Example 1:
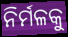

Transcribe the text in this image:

ନିର୍ମଳକୁ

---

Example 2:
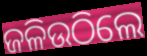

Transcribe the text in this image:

ଜଳିଉଠିଲେ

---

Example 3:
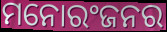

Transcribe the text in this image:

ମନୋରଂଜନର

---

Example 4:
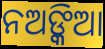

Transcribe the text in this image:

ନଅଙ୍କିଆ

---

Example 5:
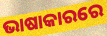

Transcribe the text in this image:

ଭାଷାକାରରେ